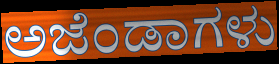
ಅಜೆಂಡಾಗಳು